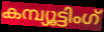
കമ്പ്യൂട്ടിംഗ്